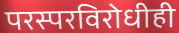
परस्परविरोधीही